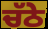
ਚੱਠੇ